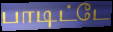
பாடிட்டே